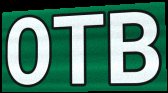
OTB